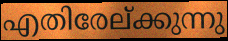
എതിരേല്ക്കുന്നു